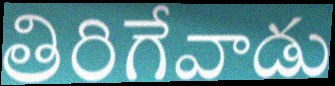
తిరిగేవాడు